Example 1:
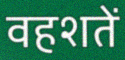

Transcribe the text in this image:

वहशतें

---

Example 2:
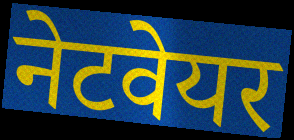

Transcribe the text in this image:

नेटवेयर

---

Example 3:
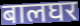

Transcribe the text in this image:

बालघर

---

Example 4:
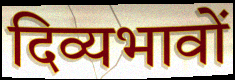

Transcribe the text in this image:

दिव्यभावों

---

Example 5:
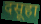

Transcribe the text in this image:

दसूहा